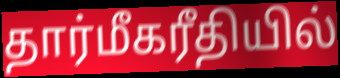
தார்மீகரீதியில்